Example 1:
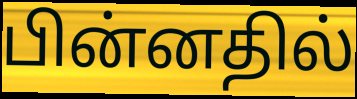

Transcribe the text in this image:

பின்னதில்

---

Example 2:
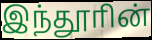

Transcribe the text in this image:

இந்தூரின்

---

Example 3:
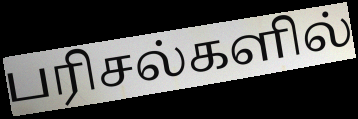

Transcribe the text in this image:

பரிசல்களில்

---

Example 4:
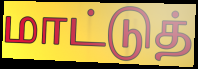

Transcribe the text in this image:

மாட்டுத்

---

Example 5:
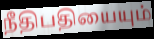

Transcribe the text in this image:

நீதிபதியையும்